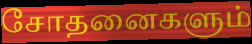
சோதனைகளும்